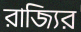
রাজ্যির